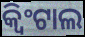
କ୍ୱିଂଟାଲ